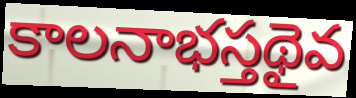
కాలనాభస్తథైవ